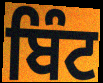
ਬਿੰਟ